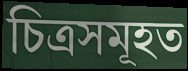
চিত্ৰসমূহত